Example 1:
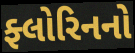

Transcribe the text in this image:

ફ્લોરિનનો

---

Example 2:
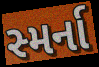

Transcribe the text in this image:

સ્મર્ના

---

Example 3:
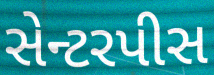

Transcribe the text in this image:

સેન્ટરપીસ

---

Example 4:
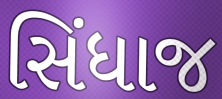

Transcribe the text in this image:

સિંધાજ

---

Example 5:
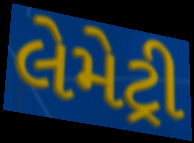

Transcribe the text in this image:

લેમેટ્રી